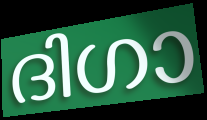
ദിഗാ